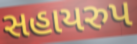
સહાયરુપ